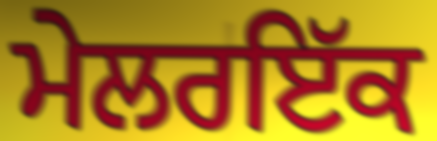
ਮੇਲਰਇੱਕ